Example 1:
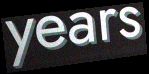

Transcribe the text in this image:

years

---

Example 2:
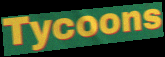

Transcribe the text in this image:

Tycoons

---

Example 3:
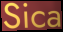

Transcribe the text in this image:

Sica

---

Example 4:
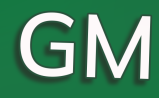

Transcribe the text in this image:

GM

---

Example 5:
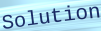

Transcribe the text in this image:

Solution